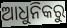
ଆଧୁନିକରୁ